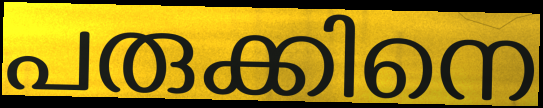
പരുക്കിനെ